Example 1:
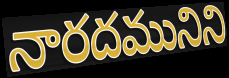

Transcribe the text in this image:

నారదమునిని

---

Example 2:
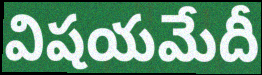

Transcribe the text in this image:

విషయమేదీ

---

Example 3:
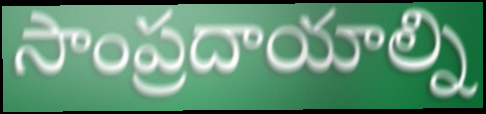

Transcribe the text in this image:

సాంప్రదాయాల్ని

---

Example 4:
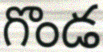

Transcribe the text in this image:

గొండ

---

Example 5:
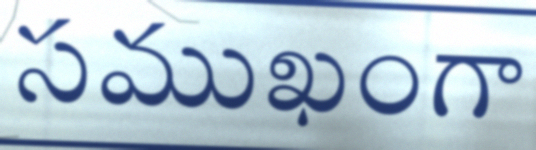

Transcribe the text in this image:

సముఖంగా